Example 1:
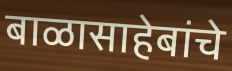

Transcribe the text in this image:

बाळासाहेबांचे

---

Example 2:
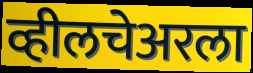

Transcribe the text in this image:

व्हीलचेअरला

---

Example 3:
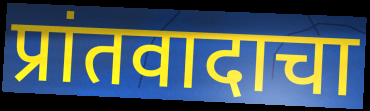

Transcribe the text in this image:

प्रांतवादाचा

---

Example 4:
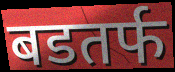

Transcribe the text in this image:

बडतर्फ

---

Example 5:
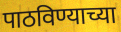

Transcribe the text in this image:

पाठविण्याच्या